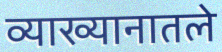
व्याख्यानातले